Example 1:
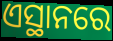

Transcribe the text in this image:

ଏସ୍ଥାନରେ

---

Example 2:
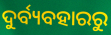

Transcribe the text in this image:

ଦୁର୍ବ୍ୟବହାରରୁ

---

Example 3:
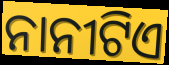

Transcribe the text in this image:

ନାନୀଟିଏ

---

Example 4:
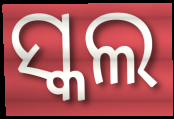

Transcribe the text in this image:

ସ୍କଲ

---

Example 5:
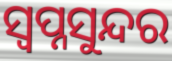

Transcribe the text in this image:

ସ୍ୱପ୍ନସୁନ୍ଦର